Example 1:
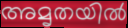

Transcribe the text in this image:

അമൃതയിൽ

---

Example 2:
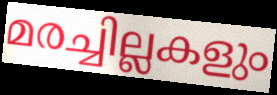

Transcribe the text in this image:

മരച്ചില്ലകളും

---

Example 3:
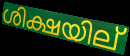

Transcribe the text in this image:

ശിക്ഷയില്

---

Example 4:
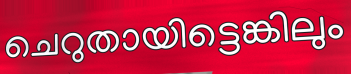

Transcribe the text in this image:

ചെറുതായിട്ടെങ്കിലും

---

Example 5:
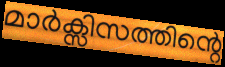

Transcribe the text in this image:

മാർക്സിസത്തിന്റെ